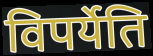
विपर्येति